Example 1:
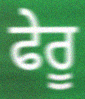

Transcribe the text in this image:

ਫੇਰੂ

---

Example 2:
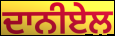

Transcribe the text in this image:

ਦਾਨੀਏਲ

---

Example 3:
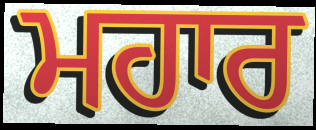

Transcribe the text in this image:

ਮਹਾਰ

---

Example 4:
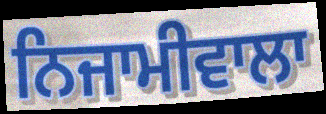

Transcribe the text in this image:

ਨਿਜਾਮੀਵਾਲਾ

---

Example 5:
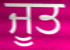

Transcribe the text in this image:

ਜੂਤ